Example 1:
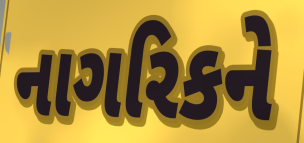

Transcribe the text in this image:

નાગરિકને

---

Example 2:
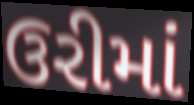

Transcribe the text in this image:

ઉરીમાં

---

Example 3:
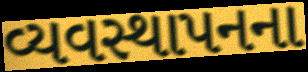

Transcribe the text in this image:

વ્યવસ્થાપનના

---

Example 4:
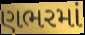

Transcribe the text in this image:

ણભરમાં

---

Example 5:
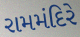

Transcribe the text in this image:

રામમંદિરે